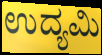
ಉದ್ಯಮಿ